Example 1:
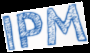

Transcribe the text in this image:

IPM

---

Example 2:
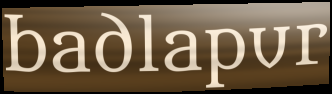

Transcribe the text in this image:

badlapur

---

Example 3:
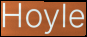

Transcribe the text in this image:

Hoyle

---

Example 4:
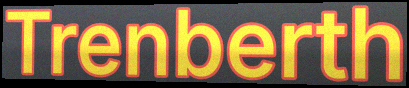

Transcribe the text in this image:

Trenberth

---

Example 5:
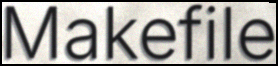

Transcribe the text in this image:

Makefile